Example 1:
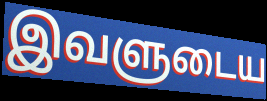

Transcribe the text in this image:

இவளுடைய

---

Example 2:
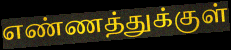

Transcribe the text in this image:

எண்ணத்துக்குள்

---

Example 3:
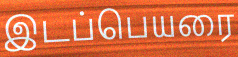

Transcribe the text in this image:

இடப்பெயரை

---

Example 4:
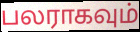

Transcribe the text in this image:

பலராகவும்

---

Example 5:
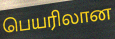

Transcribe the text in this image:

பெயரிலான